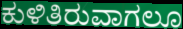
ಕುಳಿತಿರುವಾಗಲೂ